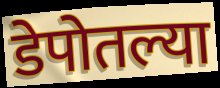
डेपोतल्या